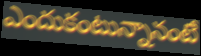
ఎందుకంటున్నానంటే